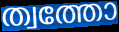
ത്വത്തോ